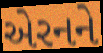
એરનને